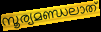
സൂര്യമണ്ഡലാത്